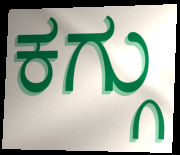
ಕಗ್ಗು